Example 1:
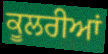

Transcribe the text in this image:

ਕੂਲਰੀਆਂ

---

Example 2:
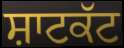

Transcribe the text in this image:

ਸ਼ਾਟਕੱਟ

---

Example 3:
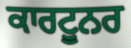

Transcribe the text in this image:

ਕਾਰਟੂਨਰ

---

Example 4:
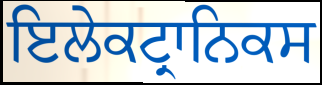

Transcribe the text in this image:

ਇਲੇਕਟ੍ਰਾਨਿਕਸ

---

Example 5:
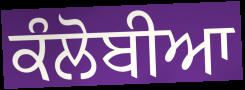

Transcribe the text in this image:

ਕੰਲੋਬੀਆ